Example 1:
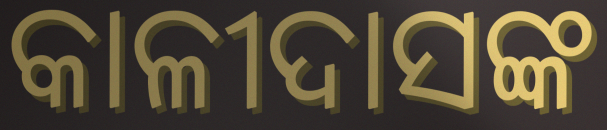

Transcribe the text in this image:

କାଳୀଦାସଙ୍କ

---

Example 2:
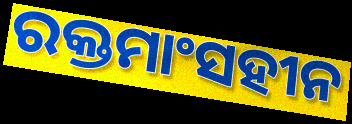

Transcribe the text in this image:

ରକ୍ତମାଂସହୀନ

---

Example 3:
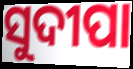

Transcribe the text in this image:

ସୁଦୀପା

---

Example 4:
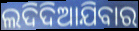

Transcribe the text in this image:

ଲଦିଦିଆଯିବାର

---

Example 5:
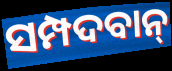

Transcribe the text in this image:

ସମ୍ପଦବାନ୍